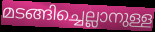
മടങ്ങിച്ചെല്ലാനുള്ള